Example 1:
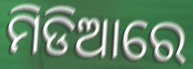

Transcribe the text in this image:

ମିଡିଆରେ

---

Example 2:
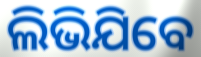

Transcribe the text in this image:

ଲିଭିଯିବେ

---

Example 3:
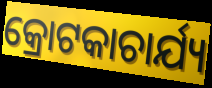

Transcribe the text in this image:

କ୍ରୋଟକାଚାର୍ଯ୍ୟ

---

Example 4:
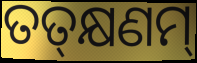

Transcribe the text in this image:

ତତ୍‌କ୍ଷଣମ୍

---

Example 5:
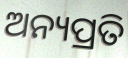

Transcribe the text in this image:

ଅନ୍ୟପ୍ରତି